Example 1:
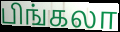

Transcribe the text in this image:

பிங்கலா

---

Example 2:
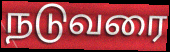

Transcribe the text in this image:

நடுவரை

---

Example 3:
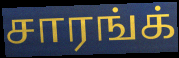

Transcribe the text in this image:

சாரங்க்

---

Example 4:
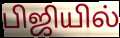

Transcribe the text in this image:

பிஜியில்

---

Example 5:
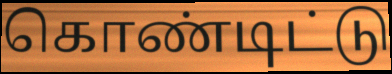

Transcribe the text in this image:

கொண்டிட்டு